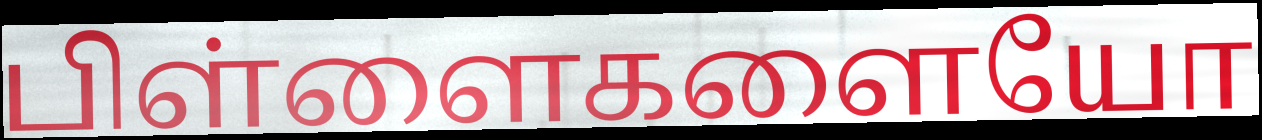
பிள்ளைகளையோ